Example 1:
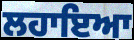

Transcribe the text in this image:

ਲਹਾਇਆ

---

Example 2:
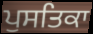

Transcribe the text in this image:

ਪੁਸਤਿਕਾ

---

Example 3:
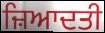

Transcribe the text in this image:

ਜ਼ਿਆਦਤੀ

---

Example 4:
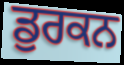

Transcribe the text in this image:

ਡੁਰਕਨ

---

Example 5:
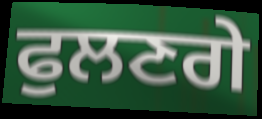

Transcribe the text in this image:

ਫੁਲਣਗੇ